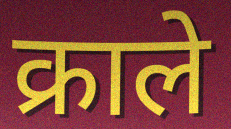
क्राले